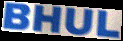
BHUL